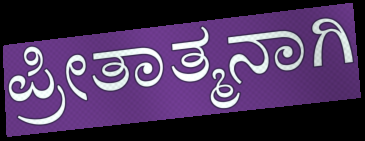
ಪ್ರೀತಾತ್ಮನಾಗಿ